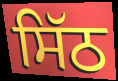
ਸਿੱਠ